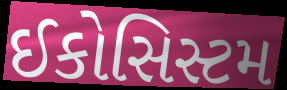
ઈકોસિસ્ટમ